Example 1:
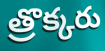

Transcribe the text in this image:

త్రొక్కరు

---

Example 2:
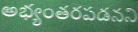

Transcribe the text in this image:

అభ్యంతరపడనని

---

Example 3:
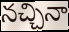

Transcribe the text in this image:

నచ్చినా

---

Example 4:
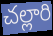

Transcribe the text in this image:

చల్లారి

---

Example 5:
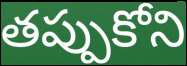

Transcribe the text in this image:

తప్పుకోని